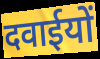
दवाईयों